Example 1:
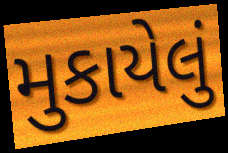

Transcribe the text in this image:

મુકાયેલું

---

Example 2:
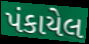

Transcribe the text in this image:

પંકાયેલ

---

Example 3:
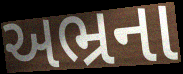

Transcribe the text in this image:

અભ્રના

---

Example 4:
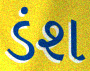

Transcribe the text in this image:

ડંશ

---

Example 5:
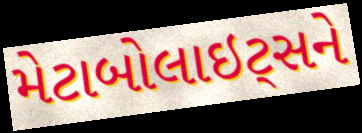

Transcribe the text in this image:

મેટાબોલાઇટ્સને